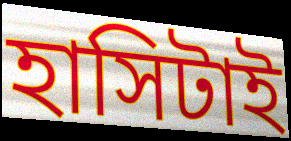
হাসিটাই